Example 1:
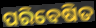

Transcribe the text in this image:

ପରିବେଷିତ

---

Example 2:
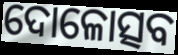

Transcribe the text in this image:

ଦୋଳୋତ୍ସବ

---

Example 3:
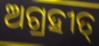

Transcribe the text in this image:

ଅଗ୍ରହୀତ୍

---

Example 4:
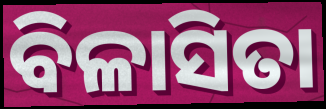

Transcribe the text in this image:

ବିଳାସିତା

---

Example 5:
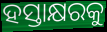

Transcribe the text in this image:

ହସ୍ତାକ୍ଷରକୁ